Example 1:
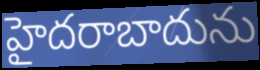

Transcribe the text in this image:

హైదరాబాదును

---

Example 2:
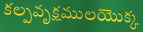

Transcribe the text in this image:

కల్పవృక్షములయొక్క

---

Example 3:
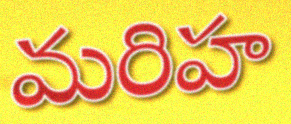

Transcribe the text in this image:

మరిహ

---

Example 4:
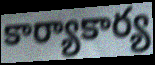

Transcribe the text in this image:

కార్యాకార్య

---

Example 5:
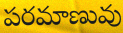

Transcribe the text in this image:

పరమాణువు